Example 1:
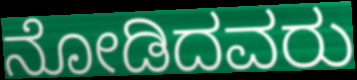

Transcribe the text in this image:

ನೋಡಿದವರು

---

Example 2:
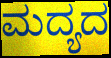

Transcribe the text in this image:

ಮದ್ಯದ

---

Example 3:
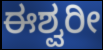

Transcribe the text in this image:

ಈಶ್ವರೀ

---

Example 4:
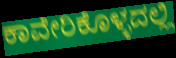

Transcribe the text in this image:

ಕಾವೇರಿಕೊಳ್ಳದಲ್ಲಿ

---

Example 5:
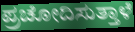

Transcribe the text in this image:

ಪ್ರಚೋದಿಸುತ್ತಾಳೆ